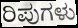
ರಿಪುಗಳು